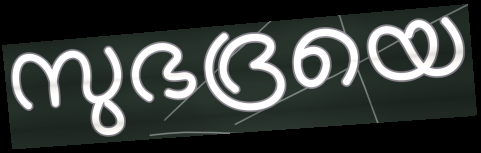
സുഭദ്രയെ